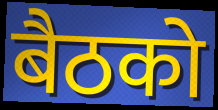
बैठको